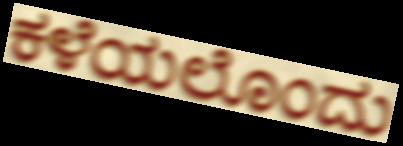
ಕಳೆಯಲೊಂದು